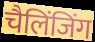
चैलिंजिंग